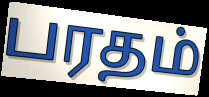
பரதம்